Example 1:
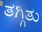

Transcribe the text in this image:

ತಗ್ಗಿತು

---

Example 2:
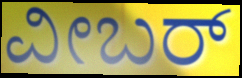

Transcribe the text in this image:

ವೀಬರ್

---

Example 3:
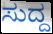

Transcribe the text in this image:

ಸುದ್ದ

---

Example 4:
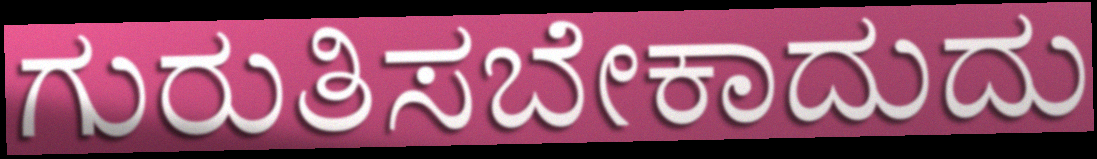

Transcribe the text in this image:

ಗುರುತಿಸಬೇಕಾದುದು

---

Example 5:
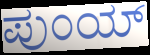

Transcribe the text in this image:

ಪುಂಯ್